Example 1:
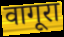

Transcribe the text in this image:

वागूरा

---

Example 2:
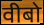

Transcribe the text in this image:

वीबो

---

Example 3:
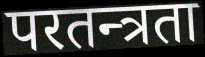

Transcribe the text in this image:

परतन्त्रता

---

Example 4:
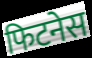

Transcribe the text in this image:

फिटनेस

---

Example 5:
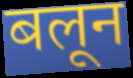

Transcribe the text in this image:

बलून